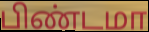
பிண்டமா